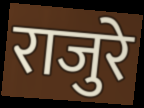
राजुरे